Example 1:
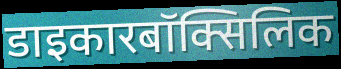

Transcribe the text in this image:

डाइकारबॉक्सिलिक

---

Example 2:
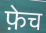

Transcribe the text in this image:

फ़ेच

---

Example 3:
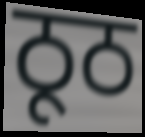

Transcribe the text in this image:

ठूठ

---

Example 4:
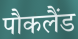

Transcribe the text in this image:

पौकलैंड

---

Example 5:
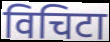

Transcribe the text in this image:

विचिटा